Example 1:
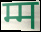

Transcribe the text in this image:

म्म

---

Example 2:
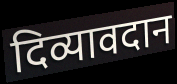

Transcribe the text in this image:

दिव्यावदान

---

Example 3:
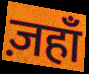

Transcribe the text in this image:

ज़हाँ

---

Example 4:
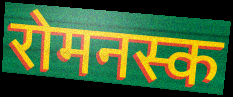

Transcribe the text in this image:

रोमनस्क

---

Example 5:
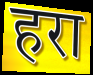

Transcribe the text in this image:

हरा